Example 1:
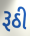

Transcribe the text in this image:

રૂઠી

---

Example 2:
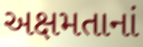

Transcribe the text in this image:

અક્ષમતાનાં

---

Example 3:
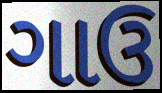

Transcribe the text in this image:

ગાઉ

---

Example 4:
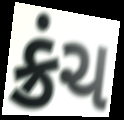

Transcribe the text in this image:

ક્રંચ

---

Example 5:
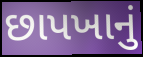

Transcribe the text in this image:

છાપખાનું